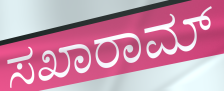
ಸಖಾರಾಮ್